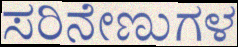
ಸರಿನೇಣುಗಳ